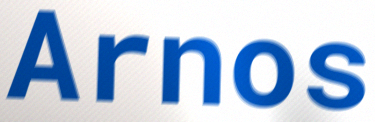
Arnos